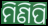
ମିଣିପି